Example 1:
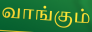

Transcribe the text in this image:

வாங்கும்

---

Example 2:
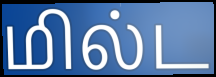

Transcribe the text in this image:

மில்ட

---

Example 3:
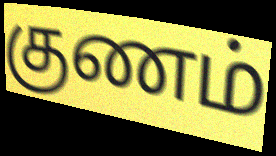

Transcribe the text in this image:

குணம்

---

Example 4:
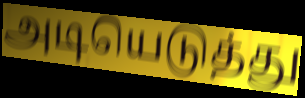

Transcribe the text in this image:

அடியெடுத்து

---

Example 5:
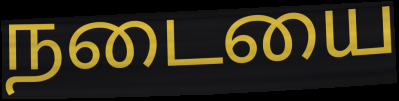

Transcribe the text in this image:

நடையை